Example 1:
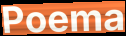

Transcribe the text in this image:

Poema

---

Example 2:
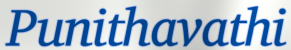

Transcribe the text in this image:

Punithavathi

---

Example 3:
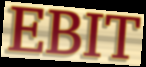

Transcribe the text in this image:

EBIT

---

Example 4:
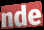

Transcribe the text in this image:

nde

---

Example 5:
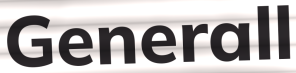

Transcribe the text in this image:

Generall